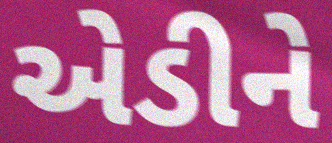
એડીને